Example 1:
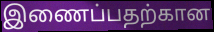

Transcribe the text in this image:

இணைப்பதற்கான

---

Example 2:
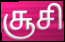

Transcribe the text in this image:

சூசி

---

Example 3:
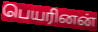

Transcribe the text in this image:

பெயரினன்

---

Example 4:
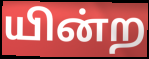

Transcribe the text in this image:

யின்ற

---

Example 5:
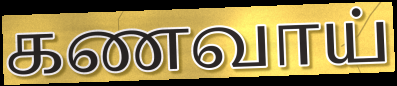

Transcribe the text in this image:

கணவாய்